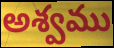
అశ్వము